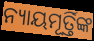
ନ୍ୟାୟମୂର୍ତ୍ତିଙ୍କ